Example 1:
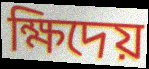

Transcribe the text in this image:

ক্ষিদেয়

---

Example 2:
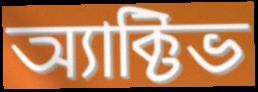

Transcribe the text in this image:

অ্যাক্টিভ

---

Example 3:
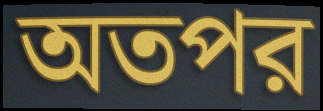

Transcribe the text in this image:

অতপর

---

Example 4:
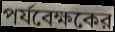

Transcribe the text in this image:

পর্যবেক্ষকের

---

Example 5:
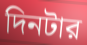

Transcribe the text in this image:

দিনটার